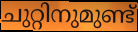
ചുറ്റിനുമുണ്ട്